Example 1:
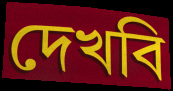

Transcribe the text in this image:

দেখবি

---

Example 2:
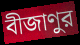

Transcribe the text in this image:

বীজাণুর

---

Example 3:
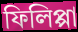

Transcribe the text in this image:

ফিলিপ্পা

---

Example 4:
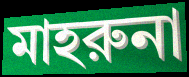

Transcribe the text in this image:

মাহরুনা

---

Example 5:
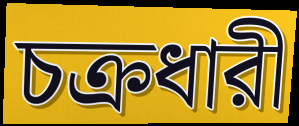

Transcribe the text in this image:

চক্রধারী